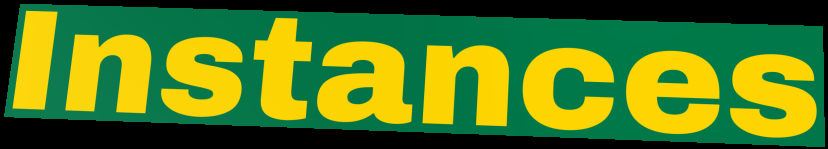
Instances